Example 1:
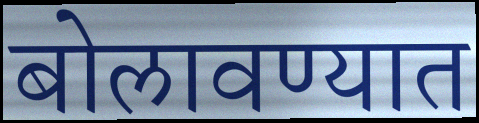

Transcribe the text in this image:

बोलावण्यात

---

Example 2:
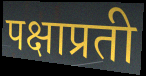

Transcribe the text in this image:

पक्षाप्रती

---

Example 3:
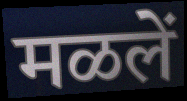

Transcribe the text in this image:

मळलें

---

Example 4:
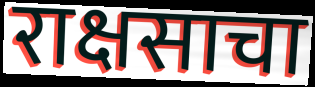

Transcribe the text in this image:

राक्षसाचा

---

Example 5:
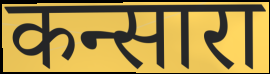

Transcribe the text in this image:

कन्सारा